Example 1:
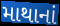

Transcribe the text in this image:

માથાનાં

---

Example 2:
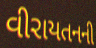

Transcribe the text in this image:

વીરાયતનની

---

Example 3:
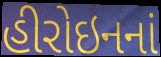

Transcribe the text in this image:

હીરોઇનનાં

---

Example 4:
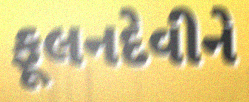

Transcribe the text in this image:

ફૂલનદેવીને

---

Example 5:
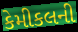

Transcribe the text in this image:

કેમીકલની